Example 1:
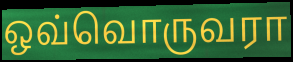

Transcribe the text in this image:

ஒவ்வொருவரா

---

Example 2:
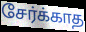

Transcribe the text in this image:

சேர்க்காத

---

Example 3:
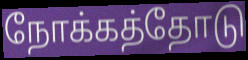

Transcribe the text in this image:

நோக்கத்தோடு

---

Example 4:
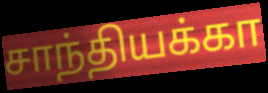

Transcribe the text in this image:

சாந்தியக்கா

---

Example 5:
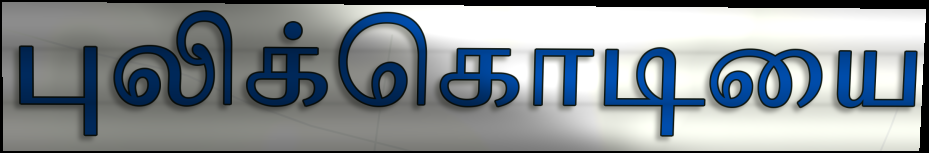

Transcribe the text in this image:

புலிக்கொடியை